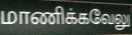
மாணிக்கவேலு